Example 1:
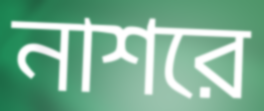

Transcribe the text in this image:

নাশরে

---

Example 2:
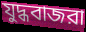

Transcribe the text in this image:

যুদ্ধবাজরা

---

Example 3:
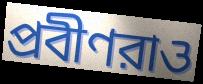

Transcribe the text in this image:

প্রবীণরাও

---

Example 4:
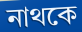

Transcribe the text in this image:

নাথকে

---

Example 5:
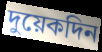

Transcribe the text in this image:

দুয়েকদিন